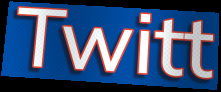
Twitt